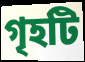
গৃহটি